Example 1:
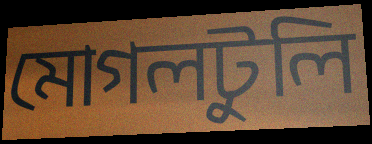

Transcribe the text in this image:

মোগলটুলি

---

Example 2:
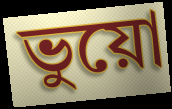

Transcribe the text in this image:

ভুয়ো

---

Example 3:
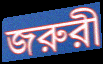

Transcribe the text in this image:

জরুরী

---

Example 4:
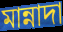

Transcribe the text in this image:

মান্নাদা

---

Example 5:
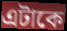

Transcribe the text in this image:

এটাকে